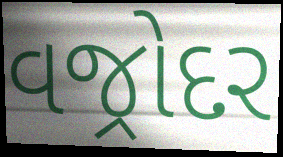
વજ્રોદર